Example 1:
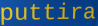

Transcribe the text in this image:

puttira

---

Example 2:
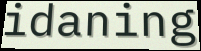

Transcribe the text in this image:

idaning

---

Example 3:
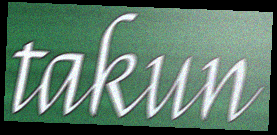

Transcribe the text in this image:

takun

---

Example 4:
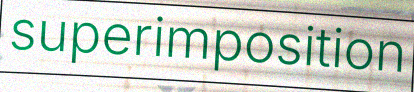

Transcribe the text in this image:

superimposition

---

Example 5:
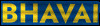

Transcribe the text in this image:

BHAVAI